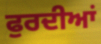
ਫੁਰਦੀਆਂ